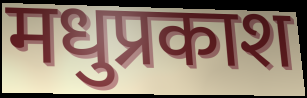
मधुप्रकाश